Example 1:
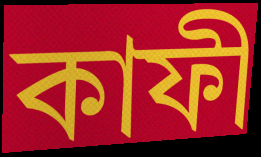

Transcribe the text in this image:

কাফী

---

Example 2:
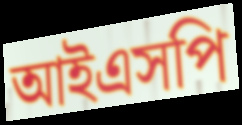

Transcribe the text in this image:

আইএসপি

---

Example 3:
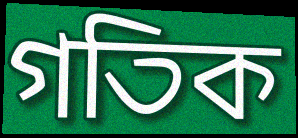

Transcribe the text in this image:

গতিক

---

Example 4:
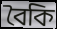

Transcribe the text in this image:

বৈকি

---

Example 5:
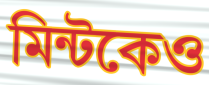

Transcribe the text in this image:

মিন্টকেও